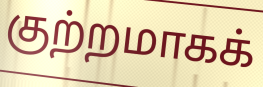
குற்றமாகக்